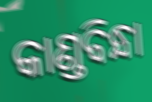
କାଣ୍ଡବିନ୍ଧା